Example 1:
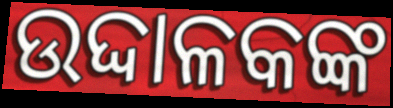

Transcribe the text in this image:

ଉଦ୍ଦାଳକଙ୍କ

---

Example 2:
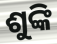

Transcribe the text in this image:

ଶୁଙ୍କି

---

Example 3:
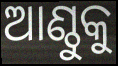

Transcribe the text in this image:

ଆଣ୍ଠୁକୁ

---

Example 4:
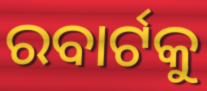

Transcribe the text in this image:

ରବାର୍ଟକୁ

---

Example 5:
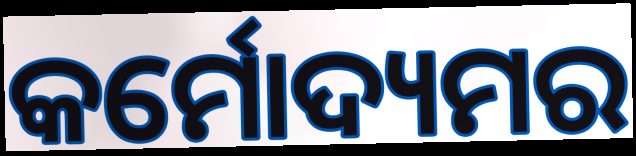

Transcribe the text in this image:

କର୍ମୋଦ୍ୟମର